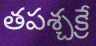
తపశ్చక్రే